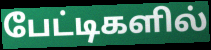
பேட்டிகளில்